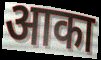
आका